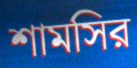
শামসির